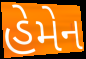
હેમેન